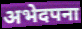
अभेदपना